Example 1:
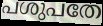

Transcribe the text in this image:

പശുപതേ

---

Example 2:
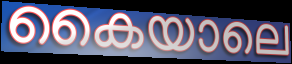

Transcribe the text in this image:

കൈയാലെ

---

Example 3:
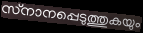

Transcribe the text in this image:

സ്‌നാനപ്പെടുത്തുകയും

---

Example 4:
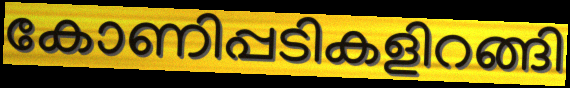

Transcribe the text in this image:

കോണിപ്പടികളിറങ്ങി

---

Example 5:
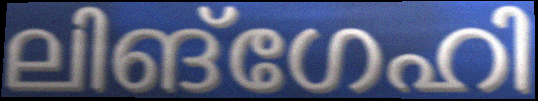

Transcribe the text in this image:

ലിങ്ഗേഹി